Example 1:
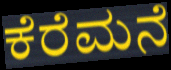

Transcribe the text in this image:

ಕೆರೆಮನೆ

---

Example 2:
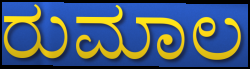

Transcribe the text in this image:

ರುಮಾಲ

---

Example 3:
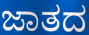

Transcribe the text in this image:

ಜಾತದ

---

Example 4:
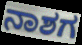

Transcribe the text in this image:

ನಾಶಗ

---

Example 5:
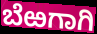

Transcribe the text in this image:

ಬೆಱಗಾಗಿ